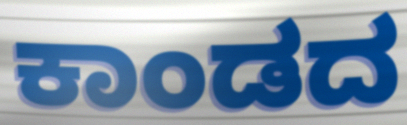
ಕಾಂಡದ